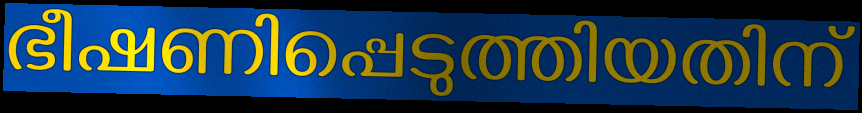
ഭീഷണിപ്പെടുത്തിയതിന്